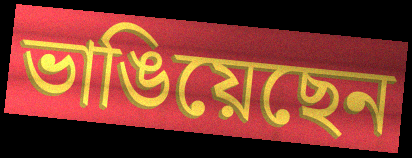
ভাঙিয়েছেন